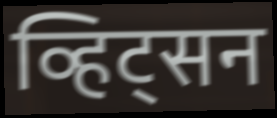
व्हिट्सन